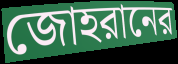
জোহরানের